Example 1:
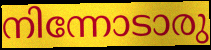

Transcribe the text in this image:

നിന്നോടാരു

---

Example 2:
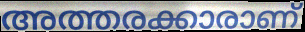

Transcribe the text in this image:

അത്തരക്കാരാണ്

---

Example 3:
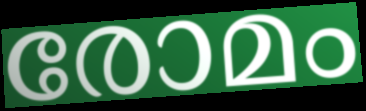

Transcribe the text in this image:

രോമം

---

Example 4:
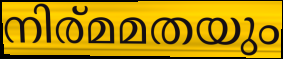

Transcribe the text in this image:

നിര്മമതയും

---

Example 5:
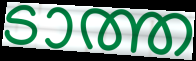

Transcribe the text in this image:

ടാത്ത